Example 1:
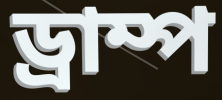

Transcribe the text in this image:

ড্রাম্প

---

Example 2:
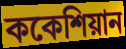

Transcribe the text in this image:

ককেশিয়ান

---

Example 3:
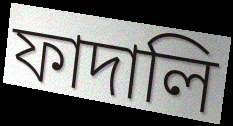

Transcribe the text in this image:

ফাদালি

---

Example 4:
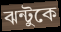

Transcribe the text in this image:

ঝন্টুকে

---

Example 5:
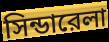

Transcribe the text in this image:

সিন্ডারেলা